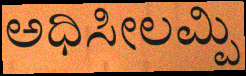
ಅಧಿಸೀಲಮ್ಪಿ